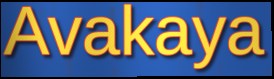
Avakaya